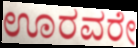
ಊರವರೇ